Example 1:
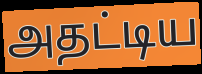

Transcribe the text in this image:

அதட்டிய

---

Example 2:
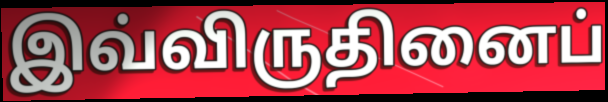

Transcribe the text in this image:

இவ்விருதினைப்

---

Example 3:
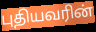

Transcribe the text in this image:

புதியவரின்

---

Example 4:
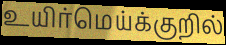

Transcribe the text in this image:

உயிர்மெய்க்குறில்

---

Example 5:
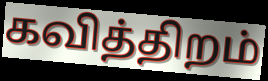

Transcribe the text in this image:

கவித்திறம்